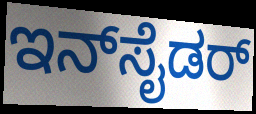
ಇನ್‌ಸೈಡರ್